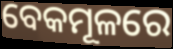
ବେକମୂଳରେ